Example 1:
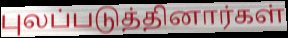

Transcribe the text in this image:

புலப்படுத்தினார்கள்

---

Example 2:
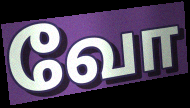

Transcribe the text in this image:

வோ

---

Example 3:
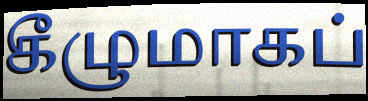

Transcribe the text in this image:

கீழுமாகப்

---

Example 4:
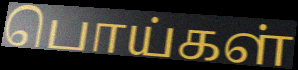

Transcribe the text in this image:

பொய்கள்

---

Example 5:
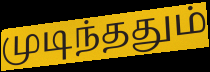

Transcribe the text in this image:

முடிந்ததும்